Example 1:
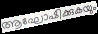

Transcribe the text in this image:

ആഘോഷിക്കുകയും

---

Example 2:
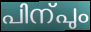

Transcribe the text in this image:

പിന്പും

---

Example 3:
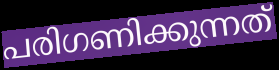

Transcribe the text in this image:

പരിഗണിക്കുന്നത്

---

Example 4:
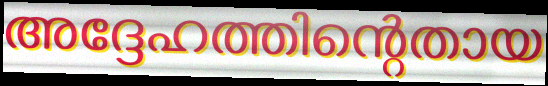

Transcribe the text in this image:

അദ്ദേഹത്തിന്റെതായ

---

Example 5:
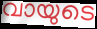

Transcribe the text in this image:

വായുടെ